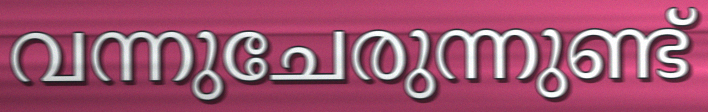
വന്നുചേരുന്നുണ്ട്